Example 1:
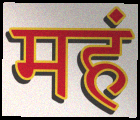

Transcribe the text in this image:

महं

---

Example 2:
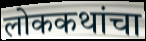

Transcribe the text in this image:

लोककथांचा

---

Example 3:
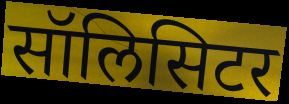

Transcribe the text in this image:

सॉलिसिटर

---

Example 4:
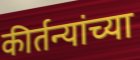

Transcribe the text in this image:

कीर्तन्यांच्या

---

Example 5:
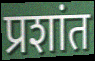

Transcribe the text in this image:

प्रशांत